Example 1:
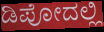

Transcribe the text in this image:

ಡಿಪೋದಲ್ಲಿ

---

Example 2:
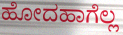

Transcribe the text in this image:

ಹೋದಹಾಗೆಲ್ಲ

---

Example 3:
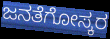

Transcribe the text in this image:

ಜನತೆಗೋಸ್ಕರ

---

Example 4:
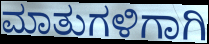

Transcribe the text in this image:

ಮಾತುಗಳಿಗಾಗಿ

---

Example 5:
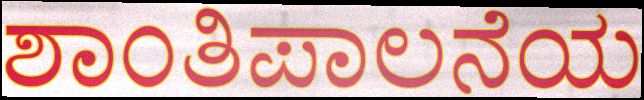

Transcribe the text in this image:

ಶಾಂತಿಪಾಲನೆಯ